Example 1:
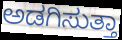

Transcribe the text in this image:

ಅಡಗಿಸುತ್ತಾ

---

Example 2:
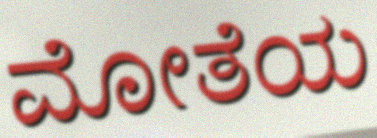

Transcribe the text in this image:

ಮೋತೆಯ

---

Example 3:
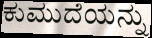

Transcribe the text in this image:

ಕುಮುದೆಯನ್ನು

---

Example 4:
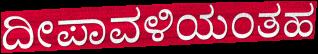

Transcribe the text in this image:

ದೀಪಾವಳಿಯಂತಹ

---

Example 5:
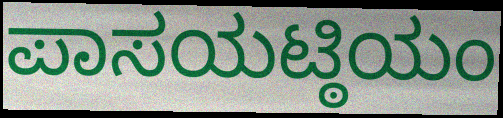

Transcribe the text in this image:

ಪಾಸಯಟ್ಠಿಯಂ